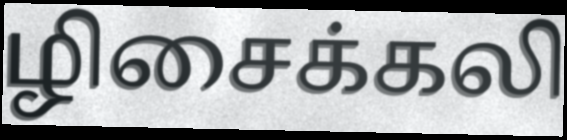
ழிசைக்கலி